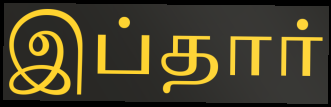
இப்தார்